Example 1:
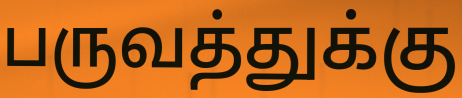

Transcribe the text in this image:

பருவத்துக்கு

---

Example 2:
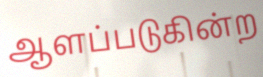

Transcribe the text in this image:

ஆளப்படுகின்ற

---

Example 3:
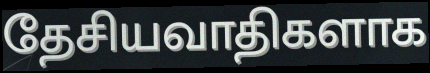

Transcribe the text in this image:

தேசியவாதிகளாக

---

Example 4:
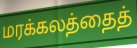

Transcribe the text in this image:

மரக்கலத்தைத்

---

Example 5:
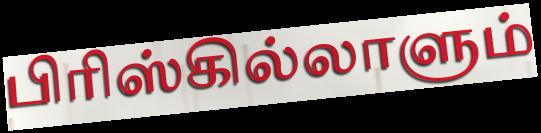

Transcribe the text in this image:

பிரிஸ்கில்லாளும்